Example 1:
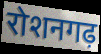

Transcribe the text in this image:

रोशनगढ़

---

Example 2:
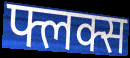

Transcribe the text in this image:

फ्लक्स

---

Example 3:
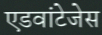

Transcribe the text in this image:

एडवांटेजेस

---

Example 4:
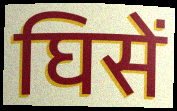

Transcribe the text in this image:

घिसें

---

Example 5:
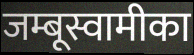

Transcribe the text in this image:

जम्बूस्वामीका